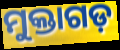
ମୁକ୍ତାଗଡ଼